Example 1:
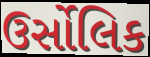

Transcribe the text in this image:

ઉર્સોલિક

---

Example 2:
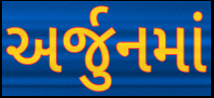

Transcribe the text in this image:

અર્જુનમાં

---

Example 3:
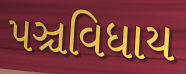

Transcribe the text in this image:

પઞ્ચવિધાય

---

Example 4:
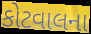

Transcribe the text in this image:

કોટવાલના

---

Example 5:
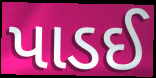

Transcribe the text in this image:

પાડઈ